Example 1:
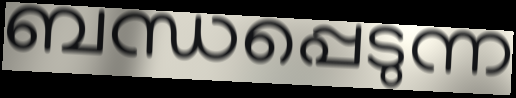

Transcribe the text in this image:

ബന്ധപ്പെടുന്ന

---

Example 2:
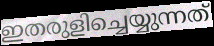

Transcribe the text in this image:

ഇതരുളിച്ചെയ്യുന്നത്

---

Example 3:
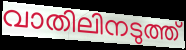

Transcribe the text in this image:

വാതിലിനടുത്ത്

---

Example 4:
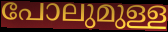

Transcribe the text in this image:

പോലുമുള്ള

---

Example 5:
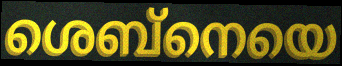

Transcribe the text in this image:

ശെബ്നെയെ